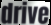
drive